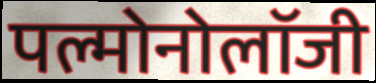
पल्मोनोलॉजी